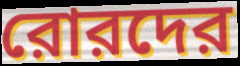
রোরদের